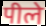
पीले